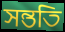
সন্ততি